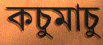
কচুমাচু